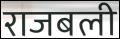
राजबली